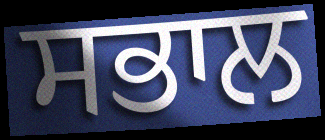
ਸਭਾਲ